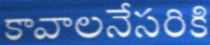
కావాలనేసరికి